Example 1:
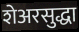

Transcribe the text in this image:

शेअरसुद्धा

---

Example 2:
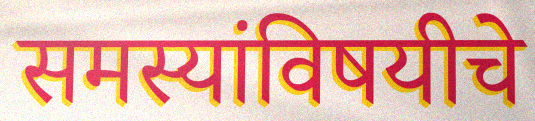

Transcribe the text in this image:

समस्यांविषयीचे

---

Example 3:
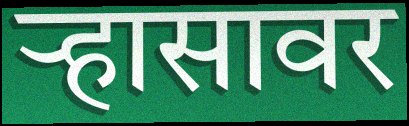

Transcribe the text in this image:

ऱ्हासावर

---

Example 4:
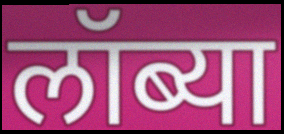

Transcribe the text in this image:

लॉब्या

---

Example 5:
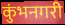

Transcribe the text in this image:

कुंभनगरी